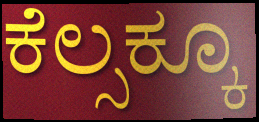
ಕೆಲ್ಸಕ್ಕೂ